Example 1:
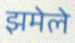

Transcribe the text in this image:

झमेले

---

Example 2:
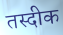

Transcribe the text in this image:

तस्दीक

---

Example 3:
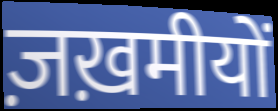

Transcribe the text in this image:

ज़ख़मीयों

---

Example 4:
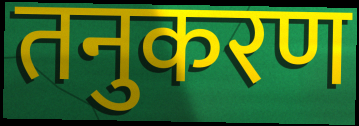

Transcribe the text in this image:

तनुकरण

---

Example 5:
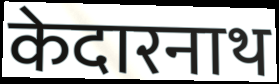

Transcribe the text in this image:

केदारनाथ